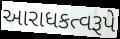
આરાધકત્વરૂપે